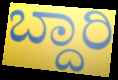
ಬ್ದಾರಿ